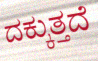
ದಕ್ಕುತ್ತದೆ